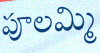
పూలమ్మి